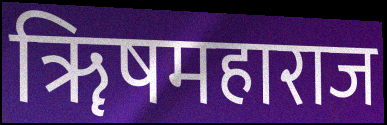
ॠिषमहाराज